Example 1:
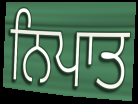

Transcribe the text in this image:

ਨਿਪਾਤ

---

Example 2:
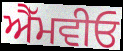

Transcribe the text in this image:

ਐੱਮਵੀਓ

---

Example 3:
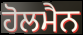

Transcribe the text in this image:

ਹੋਲਮੈਨ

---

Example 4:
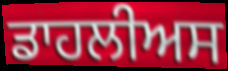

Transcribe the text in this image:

ਡਾਹਲੀਅਸ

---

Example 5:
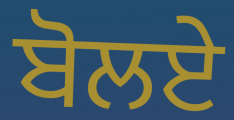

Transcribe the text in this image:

ਬੋਲਏ